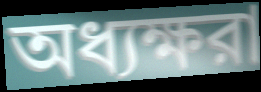
অধ্যক্ষরা